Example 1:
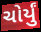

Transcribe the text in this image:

ચોર્યું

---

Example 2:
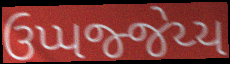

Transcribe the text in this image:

ઉપ્પજ્જેય્ય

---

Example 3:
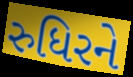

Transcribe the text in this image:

રુધિરને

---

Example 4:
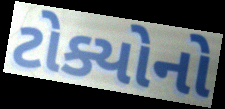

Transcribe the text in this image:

ટોક્યોનો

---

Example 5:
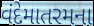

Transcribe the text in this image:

વંદેમાતરમના